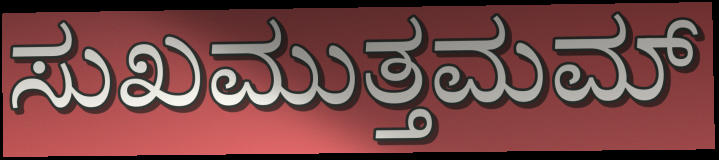
ಸುಖಮುತ್ತಮಮ್